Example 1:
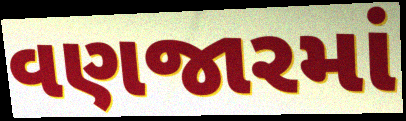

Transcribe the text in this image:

વણજારમાં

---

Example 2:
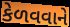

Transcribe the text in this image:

કેળવવાને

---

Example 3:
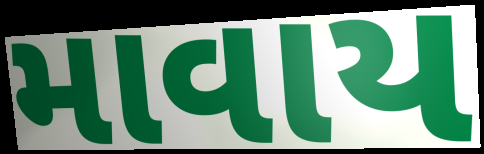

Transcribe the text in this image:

માવાય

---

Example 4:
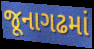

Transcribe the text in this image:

જૂનાગઢમાં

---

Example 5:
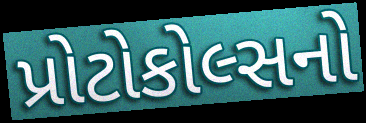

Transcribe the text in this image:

પ્રોટોકોલ્સનો